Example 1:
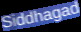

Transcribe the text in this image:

Siddhagad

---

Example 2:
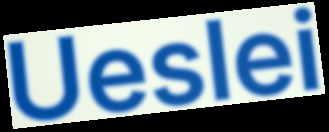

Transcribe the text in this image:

Ueslei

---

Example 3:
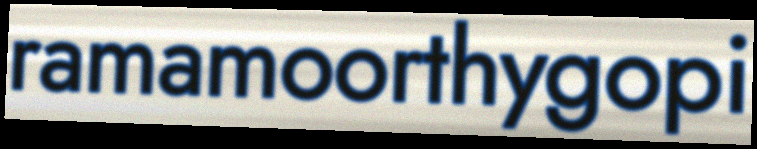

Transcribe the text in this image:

ramamoorthygopi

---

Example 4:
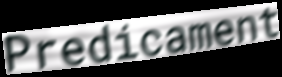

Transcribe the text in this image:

Predicament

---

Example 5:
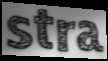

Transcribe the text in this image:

stra